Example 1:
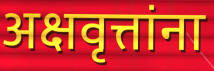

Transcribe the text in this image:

अक्षवृत्तांना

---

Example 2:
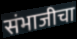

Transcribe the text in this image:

संभाजीचा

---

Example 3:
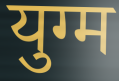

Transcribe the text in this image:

युग्म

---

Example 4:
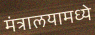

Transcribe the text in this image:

मंत्रालयामध्ये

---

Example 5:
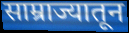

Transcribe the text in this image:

साम्राज्यातून